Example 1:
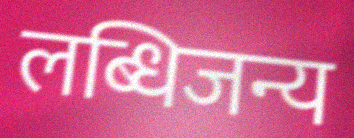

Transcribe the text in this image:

लब्धिजन्य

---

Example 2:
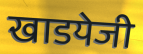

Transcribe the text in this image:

खाडयेजी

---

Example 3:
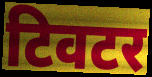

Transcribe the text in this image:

टिवटर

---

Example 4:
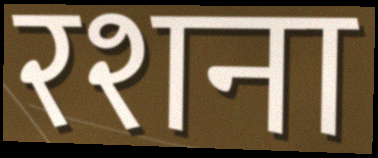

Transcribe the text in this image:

रशना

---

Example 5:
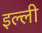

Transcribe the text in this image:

इल्ली